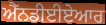
ਐੱਨਡੀਈਏਆਰ